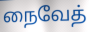
நைவேத்